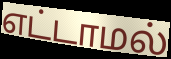
எட்டாமல்